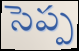
సెప్ప